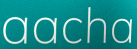
aacha